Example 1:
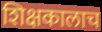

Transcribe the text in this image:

शिक्षकालाच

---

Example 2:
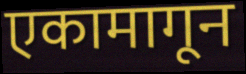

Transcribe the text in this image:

एकामागून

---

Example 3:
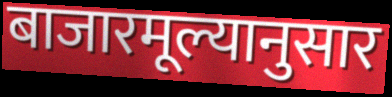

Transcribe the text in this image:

बाजारमूल्यानुसार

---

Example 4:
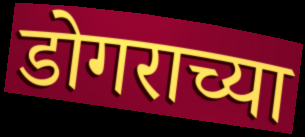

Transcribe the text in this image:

डोगराच्या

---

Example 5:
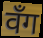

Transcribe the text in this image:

वँग